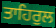
ਤਾਹਿਰੁਲ